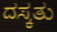
ದಸ್ಕತು